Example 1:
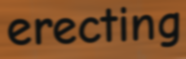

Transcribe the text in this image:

erecting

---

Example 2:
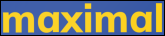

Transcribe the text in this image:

maximal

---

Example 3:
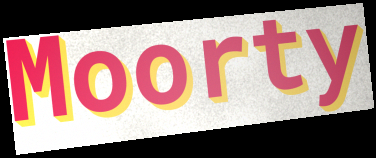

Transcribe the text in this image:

Moorty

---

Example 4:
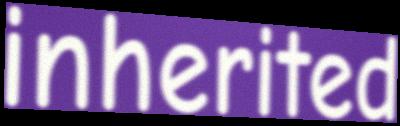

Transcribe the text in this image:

inherited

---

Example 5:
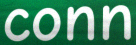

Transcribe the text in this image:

conn